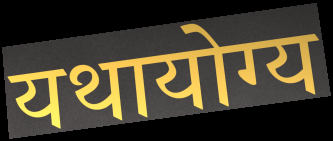
यथायोग्य